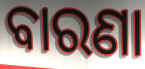
ବାରଣା